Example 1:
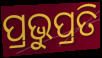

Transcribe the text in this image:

ପ୍ରଭୁପ୍ରତି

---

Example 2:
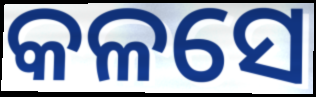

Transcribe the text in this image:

କଳସେ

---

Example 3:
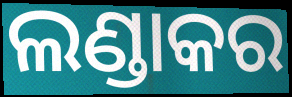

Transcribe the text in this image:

ଲଣ୍ଡାକର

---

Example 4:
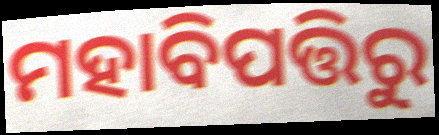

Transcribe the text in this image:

ମହାବିପତ୍ତିରୁ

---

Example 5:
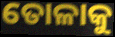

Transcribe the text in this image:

ତୋଳାକୁ